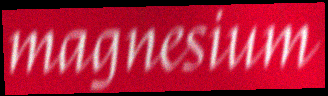
magnesium